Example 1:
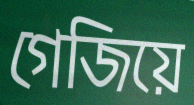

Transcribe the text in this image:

গেজিয়ে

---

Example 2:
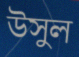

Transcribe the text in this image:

উসুল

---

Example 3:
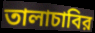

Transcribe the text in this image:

তালাচাবির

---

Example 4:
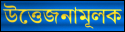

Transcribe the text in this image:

উত্তেজনামূলক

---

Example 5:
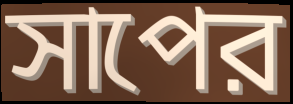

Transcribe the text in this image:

সাপের